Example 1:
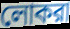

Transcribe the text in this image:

লোকরা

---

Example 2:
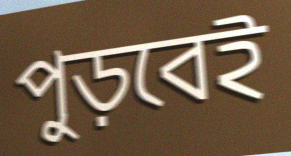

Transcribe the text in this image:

পুড়বেই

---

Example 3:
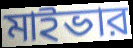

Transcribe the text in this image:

মাইভার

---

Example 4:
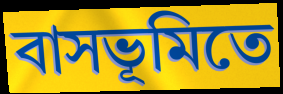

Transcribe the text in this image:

বাসভূমিতে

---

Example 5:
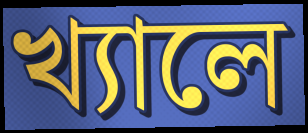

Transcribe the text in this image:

খ্যালে